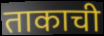
ताकाची